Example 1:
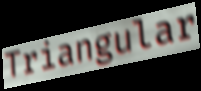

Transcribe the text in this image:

Triangular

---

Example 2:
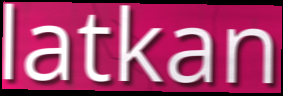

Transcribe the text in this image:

latkan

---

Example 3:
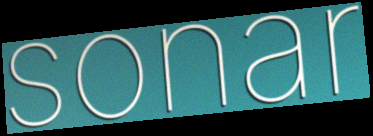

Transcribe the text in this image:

sonar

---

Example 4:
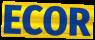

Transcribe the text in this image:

ECOR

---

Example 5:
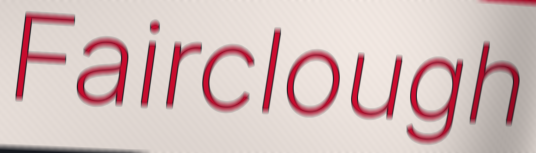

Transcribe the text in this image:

Fairclough